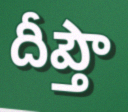
దీప్తౌ